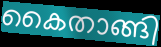
കൈതാങ്ങി